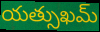
యత్సుఖమ్